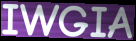
IWGIA